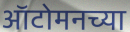
ऑटोमनच्या